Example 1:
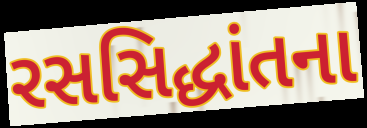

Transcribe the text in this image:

રસસિદ્ધાંતના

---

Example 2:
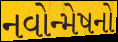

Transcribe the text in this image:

નવોન્મેષનો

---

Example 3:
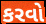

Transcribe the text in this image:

કરવો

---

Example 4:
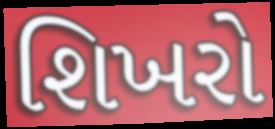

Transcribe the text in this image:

શિખરો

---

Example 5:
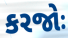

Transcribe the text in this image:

કરજોઃ